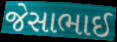
જેસાભાઈ